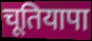
चूतियापा